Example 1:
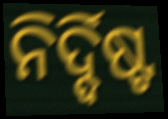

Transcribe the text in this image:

ନିର୍ଦ୍ଦିଷ୍ଟ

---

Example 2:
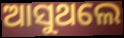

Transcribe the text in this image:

ଆସୁଥଲେ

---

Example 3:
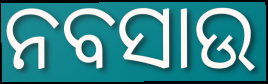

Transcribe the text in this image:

ନବସାଉ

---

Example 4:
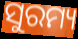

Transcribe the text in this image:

ସୁରମ୍ୟ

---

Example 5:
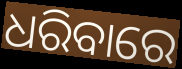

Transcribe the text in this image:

ଧରିବାରେ